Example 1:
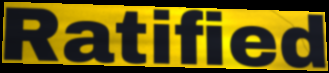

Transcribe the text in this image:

Ratified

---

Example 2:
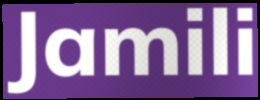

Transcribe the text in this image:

Jamili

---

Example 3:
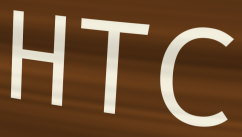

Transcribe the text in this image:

HTC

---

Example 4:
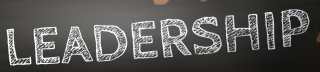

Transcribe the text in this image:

LEADERSHIP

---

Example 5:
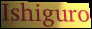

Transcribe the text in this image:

Ishiguro